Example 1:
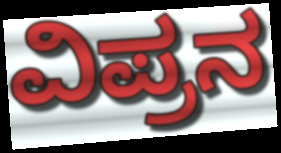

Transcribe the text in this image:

ವಿಪ್ರನ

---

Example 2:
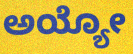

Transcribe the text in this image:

ಅಯ್ಯೋ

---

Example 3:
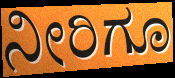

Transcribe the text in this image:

ನೀರಿಗೂ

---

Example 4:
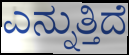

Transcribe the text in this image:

ಎನ್ನುತ್ತಿದೆ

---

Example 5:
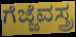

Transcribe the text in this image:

ಗೆಜ್ಜೆವಸ್ತ್ರ